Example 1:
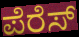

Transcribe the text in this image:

ಪೆರೆಸ್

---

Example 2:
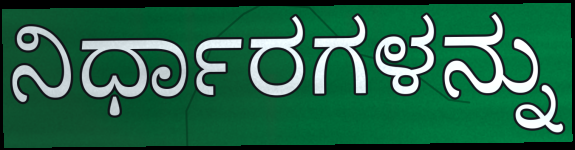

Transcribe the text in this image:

ನಿರ್ಧಾರಗಳನ್ನು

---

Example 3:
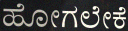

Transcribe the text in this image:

ಹೋಗಲೇಕೆ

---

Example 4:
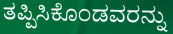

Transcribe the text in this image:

ತಪ್ಪಿಸಿಕೊಂಡವರನ್ನು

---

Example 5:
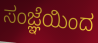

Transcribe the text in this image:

ಸಂಜ್ಞೆಯಿಂದ